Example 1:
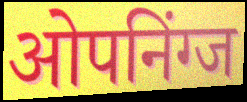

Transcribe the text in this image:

ओपनिंग्ज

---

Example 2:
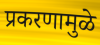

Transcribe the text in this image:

प्रकरणामुळे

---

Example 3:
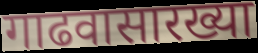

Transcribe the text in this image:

गाढवासारख्या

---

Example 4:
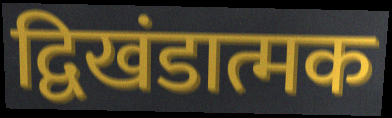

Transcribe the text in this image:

द्विखंडात्मक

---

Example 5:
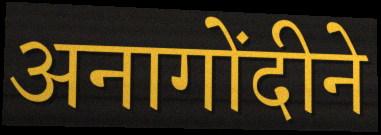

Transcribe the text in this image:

अनागोंदीने